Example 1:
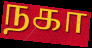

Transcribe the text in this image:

நகா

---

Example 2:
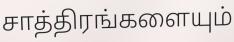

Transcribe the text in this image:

சாத்திரங்களையும்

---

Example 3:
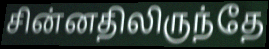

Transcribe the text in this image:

சின்னதிலிருந்தே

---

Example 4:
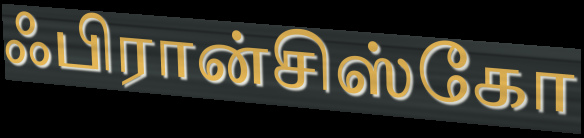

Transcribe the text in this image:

ஃபிரான்சிஸ்கோ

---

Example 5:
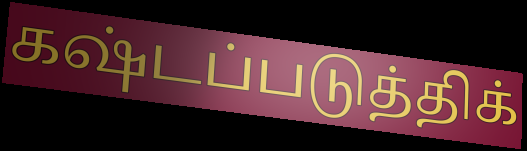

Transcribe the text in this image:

கஷ்டப்படுத்திக்